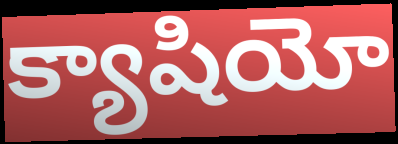
క్యాషియో